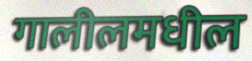
गालीलमधील